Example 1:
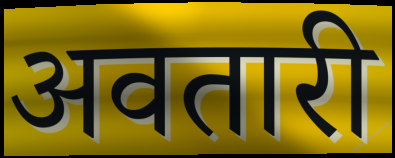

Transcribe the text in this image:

अवतारी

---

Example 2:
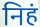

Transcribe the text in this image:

निहं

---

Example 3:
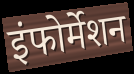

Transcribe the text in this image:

इंफोर्मेशन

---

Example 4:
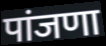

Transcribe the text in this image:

पांजणा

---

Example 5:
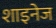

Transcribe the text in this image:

शाइनेज